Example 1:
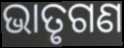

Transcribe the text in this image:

ଭାତୃଗଣ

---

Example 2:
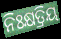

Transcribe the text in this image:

ନିଃକ୍ଷତ୍ରିୟ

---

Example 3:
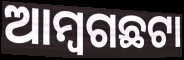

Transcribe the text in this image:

ଆମ୍ବଗଛଟା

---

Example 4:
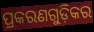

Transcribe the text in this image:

ପ୍ରକରଣଗୁଡ଼ିକର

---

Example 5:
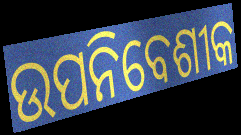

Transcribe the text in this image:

ଉପନିବେଶୀକ